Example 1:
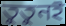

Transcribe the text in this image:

তুতুনই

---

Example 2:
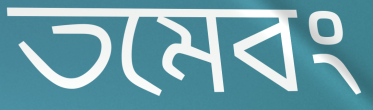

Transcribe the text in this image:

তমেবং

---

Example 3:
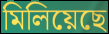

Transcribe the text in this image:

মিলিয়েছে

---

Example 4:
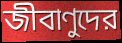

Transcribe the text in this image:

জীবাণুদের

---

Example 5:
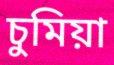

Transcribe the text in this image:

চুমিয়া